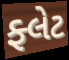
ફ્લેટ